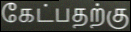
கேட்பதற்கு